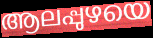
ആലപ്പുഴയെ